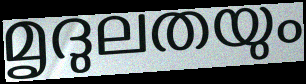
മൃദുലതയും